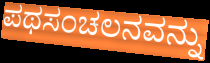
ಪಥಸಂಚಲನವನ್ನು